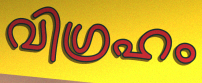
വിഗ്രഹം